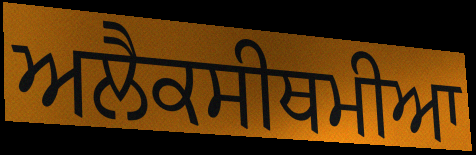
ਅਲੈਕਸੀਥਮੀਆ